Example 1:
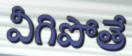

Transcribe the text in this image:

వీగిపోతే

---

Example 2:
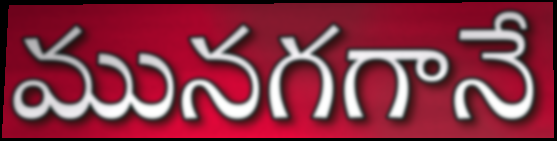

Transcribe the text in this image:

మునగగానే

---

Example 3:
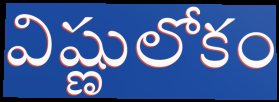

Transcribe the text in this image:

విష్ణులోకం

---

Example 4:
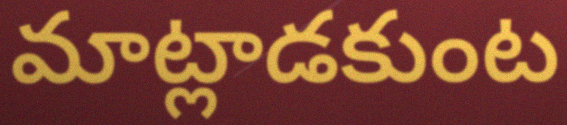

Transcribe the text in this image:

మాట్లాడకుంట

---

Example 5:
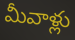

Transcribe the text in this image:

మీవాళ్లు